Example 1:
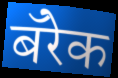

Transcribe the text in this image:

बॅरेक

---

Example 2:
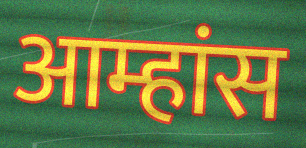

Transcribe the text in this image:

आम्हांस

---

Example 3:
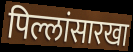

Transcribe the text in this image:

पिल्लांसारखा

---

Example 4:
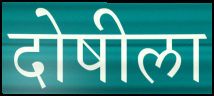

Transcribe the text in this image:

दोषीला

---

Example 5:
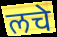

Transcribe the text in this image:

लचे